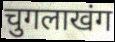
चुगलाखंग